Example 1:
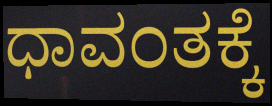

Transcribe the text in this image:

ಧಾವಂತಕ್ಕೆ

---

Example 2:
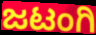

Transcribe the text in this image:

ಜಟಂಗಿ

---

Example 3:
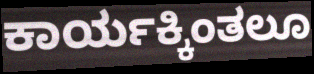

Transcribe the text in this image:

ಕಾರ್ಯಕ್ಕಿಂತಲೂ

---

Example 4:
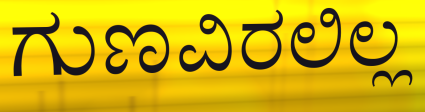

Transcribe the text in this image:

ಗುಣವಿರಲಿಲ್ಲ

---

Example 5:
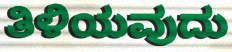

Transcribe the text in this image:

ತಿಳಿಯವುದು